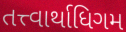
તત્ત્વાર્થાધિગમ